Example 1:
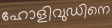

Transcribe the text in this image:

ഹോളിവുഡിനെ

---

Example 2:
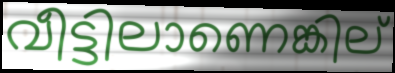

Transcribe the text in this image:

വീട്ടിലാണെങ്കില്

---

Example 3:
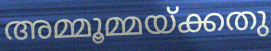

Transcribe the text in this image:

അമ്മൂമ്മയ്ക്കതു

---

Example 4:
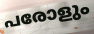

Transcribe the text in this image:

പരോളും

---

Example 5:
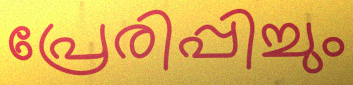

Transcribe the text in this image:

പ്രേരിപ്പിച്ചും